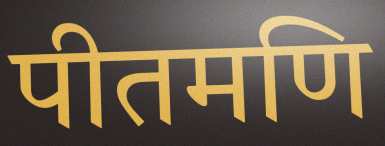
पीतमणि